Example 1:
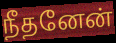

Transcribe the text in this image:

நீதனேன்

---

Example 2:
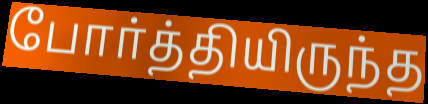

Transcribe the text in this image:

போர்த்தியிருந்த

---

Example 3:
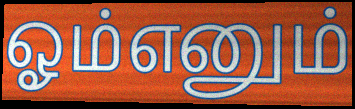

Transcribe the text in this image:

ஓம்எனும்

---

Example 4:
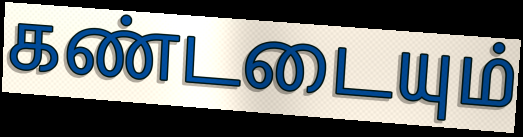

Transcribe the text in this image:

கண்டடையும்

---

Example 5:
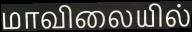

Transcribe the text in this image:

மாவிலையில்